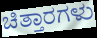
ಚಿತ್ತಾರಗಳು